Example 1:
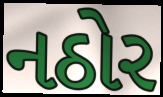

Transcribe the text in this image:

નઠોર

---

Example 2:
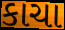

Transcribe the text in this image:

કાચા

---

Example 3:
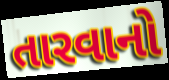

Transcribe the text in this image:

તારવાનો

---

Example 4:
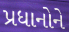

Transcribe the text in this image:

પ્રધાનોને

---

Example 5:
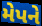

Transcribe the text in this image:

મેપને